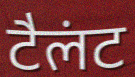
टैलंट